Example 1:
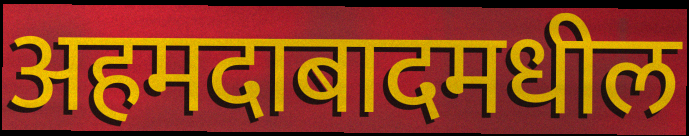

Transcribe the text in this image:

अहमदाबादमधील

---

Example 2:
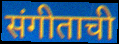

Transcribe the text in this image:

संगीताची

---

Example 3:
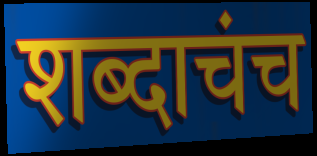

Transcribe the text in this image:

शब्दाचंच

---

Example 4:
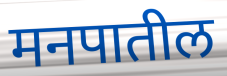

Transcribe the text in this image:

मनपातील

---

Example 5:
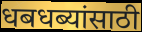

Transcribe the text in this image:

धबधब्यांसाठी